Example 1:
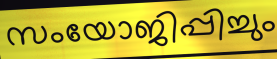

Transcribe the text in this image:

സംയോജിപ്പിച്ചും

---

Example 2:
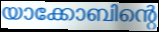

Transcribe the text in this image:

യാക്കോബിന്റെ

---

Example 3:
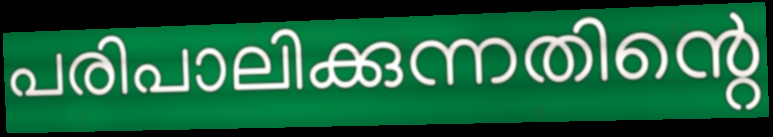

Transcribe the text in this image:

പരിപാലിക്കുന്നതിന്റെ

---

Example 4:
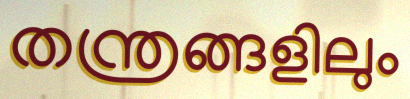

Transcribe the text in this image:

തന്ത്രങ്ങളിലും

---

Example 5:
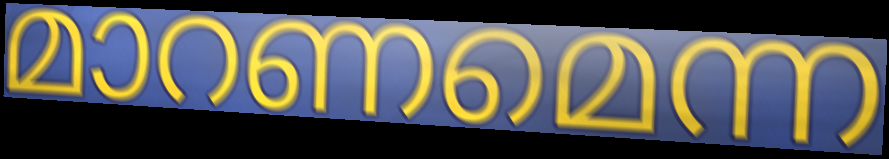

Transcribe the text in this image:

മാറണമെന്ന